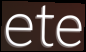
ete